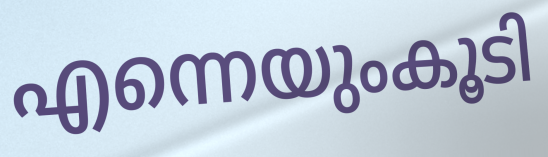
എന്നെയുംകൂടി